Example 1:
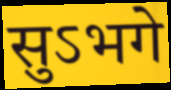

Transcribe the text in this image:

सुऽभगे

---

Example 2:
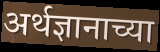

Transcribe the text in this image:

अर्थज्ञानाच्या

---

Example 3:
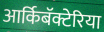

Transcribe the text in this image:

आर्किबॅक्टेरिया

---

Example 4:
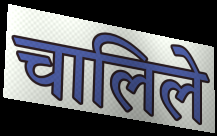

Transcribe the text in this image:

चालिले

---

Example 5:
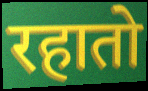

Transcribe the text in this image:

रहातो